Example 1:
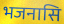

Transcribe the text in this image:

भजनासि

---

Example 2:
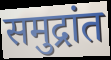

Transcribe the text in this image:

समुद्रांत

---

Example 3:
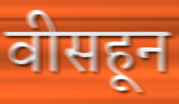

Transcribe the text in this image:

वीसहून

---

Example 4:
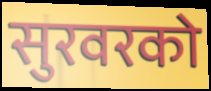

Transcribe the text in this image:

सुरवरको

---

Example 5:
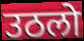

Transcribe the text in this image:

उठलो